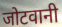
जोटवानी